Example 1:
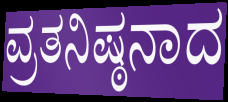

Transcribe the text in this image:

ವ್ರತನಿಷ್ಠನಾದ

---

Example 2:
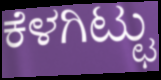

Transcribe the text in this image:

ಕೆಳಗಿಟ್ಟು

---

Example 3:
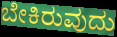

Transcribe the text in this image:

ಬೇಕಿರುವುದು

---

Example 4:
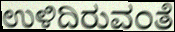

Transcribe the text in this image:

ಉಳಿದಿರುವಂತೆ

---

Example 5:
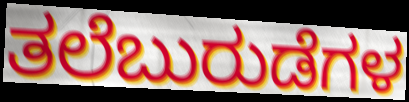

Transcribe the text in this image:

ತಲೆಬುರುಡೆಗಳ